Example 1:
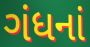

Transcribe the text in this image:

ગંધનાં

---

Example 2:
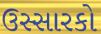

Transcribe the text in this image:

ઉસ્સારકો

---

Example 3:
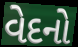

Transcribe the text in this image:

વેદનો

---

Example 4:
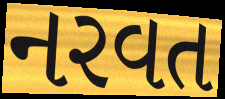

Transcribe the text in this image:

નરવત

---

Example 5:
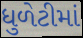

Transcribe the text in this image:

ધુળેટીમાં